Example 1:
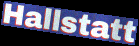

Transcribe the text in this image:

Hallstatt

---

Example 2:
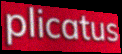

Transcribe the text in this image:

plicatus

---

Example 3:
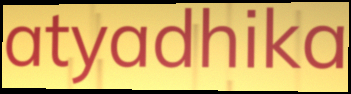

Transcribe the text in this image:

atyadhika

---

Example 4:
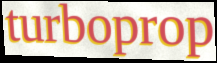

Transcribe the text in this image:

turboprop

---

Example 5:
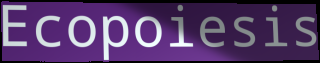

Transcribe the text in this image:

Ecopoiesis